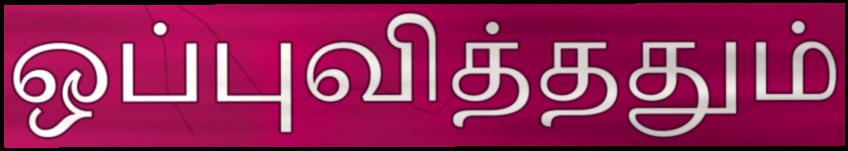
ஒப்புவித்ததும்